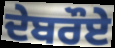
ਦੇਬਰੌਏ